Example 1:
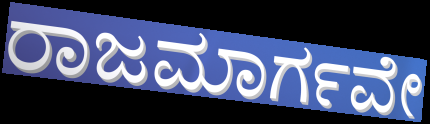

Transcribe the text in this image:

ರಾಜಮಾರ್ಗವೇ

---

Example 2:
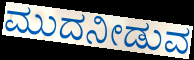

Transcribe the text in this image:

ಮುದನೀಡುವ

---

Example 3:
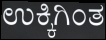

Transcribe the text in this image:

ಉಕ್ಕಿಗಿಂತ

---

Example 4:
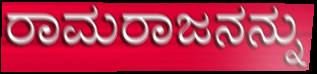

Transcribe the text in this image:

ರಾಮರಾಜನನ್ನು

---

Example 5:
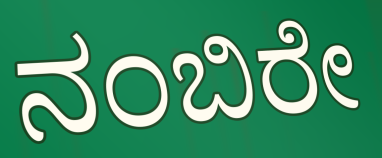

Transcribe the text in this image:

ನಂಬಿರೇ